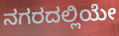
ನಗರದಲ್ಲಿಯೇ